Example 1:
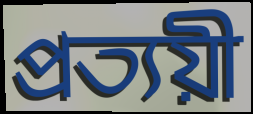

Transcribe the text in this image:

প্রত্যয়ী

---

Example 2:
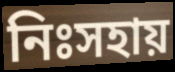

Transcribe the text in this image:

নিঃসহায়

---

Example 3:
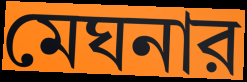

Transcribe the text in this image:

মেঘনার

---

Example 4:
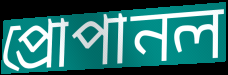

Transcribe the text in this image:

প্রোপানল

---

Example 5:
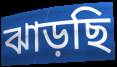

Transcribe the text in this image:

ঝাড়ছি